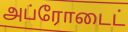
அப்ரோடைட்